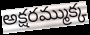
అక్షరమ్ముక్క